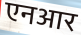
एनआर